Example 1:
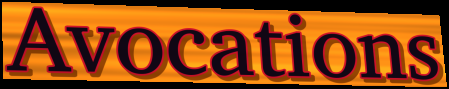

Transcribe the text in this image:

Avocations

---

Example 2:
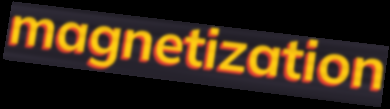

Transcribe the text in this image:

magnetization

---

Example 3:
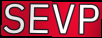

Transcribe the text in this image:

SEVP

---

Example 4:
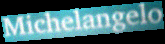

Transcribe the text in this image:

Michelangelo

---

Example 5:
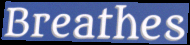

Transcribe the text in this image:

Breathes